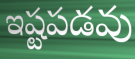
ఇష్టపడవు